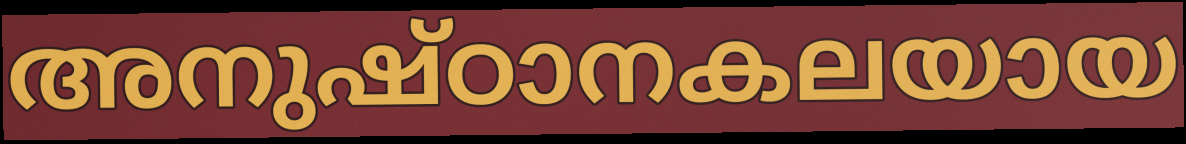
അനുഷ്ഠാനകലയായ